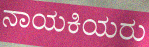
ನಾಯಕಿಯರು